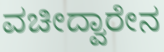
ವಚೀದ್ವಾರೇನ